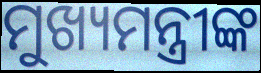
ମୁଖ୍ୟମନ୍ତ୍ରୀଙ୍କ